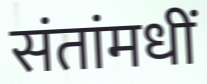
संतांमधीं